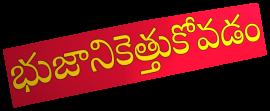
భుజానికెత్తుకోవడం